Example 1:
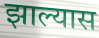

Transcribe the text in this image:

झाल्यास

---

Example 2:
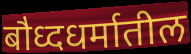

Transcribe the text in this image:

बौध्दधर्मातील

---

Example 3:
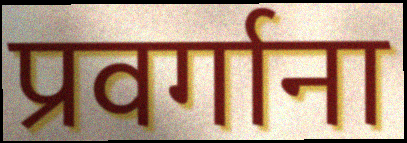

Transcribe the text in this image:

प्रवर्गाना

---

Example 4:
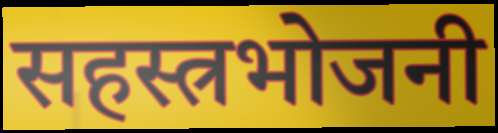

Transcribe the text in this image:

सहस्त्रभोजनी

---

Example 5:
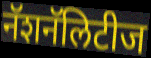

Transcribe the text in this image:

नॅशनॅलिटीज